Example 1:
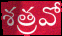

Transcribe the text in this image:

శత్రవో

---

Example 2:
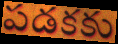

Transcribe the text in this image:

పడకకు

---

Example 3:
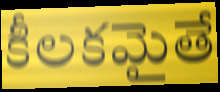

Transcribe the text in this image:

కీలకమైతే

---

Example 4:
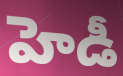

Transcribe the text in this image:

హెడీ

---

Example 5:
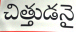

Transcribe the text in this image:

చిత్తుడనై